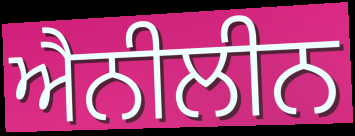
ਐਨੀਲੀਨ